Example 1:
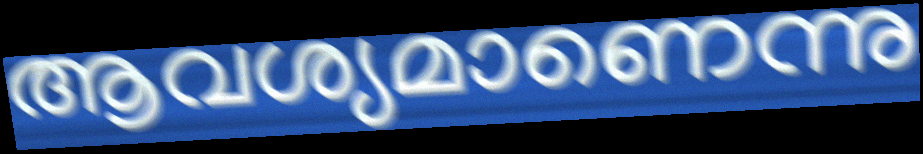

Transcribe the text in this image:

ആവശ്യമാണെന്നു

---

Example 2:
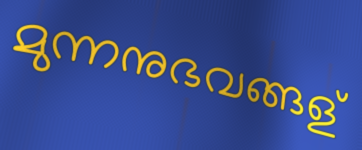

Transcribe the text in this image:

മുന്നനുഭവങ്ങള്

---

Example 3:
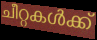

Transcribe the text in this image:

ചീറ്റകൾക്ക്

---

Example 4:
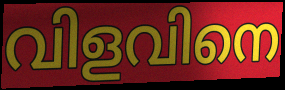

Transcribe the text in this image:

വിളവിനെ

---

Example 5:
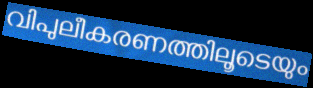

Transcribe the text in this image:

വിപുലീകരണത്തിലൂടെയും